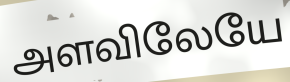
அளவிலேயே